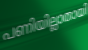
പണിയില്ലാതായി